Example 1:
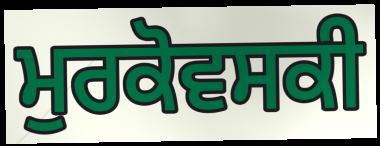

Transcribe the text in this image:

ਮੁਰਕੋਵਸਕੀ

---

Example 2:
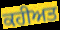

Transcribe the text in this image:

ਕਹੀਅਤ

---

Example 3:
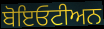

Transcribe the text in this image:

ਬੋਇਓਟੀਅਨ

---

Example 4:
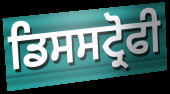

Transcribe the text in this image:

ਡਿਸਸਟ੍ਰੋਫੀ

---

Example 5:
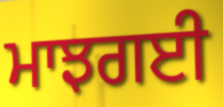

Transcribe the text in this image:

ਮਾਝਗਈ